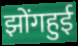
झोंगहुई